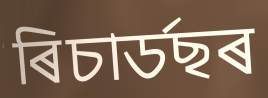
ৰিচাৰ্ডছৰ